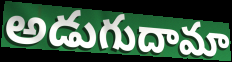
అడుగుదామా